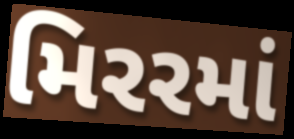
મિરરમાં